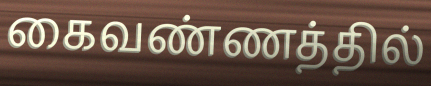
கைவண்ணத்தில்